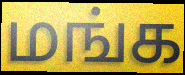
மங்க